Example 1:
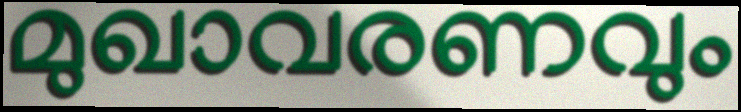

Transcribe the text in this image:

മുഖാവരണവും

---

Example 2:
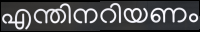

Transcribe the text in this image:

എന്തിനറിയണം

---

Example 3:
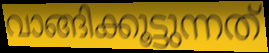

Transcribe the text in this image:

വാങ്ങിക്കൂട്ടുന്നത്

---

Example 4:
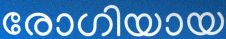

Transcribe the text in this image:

രോഗിയായ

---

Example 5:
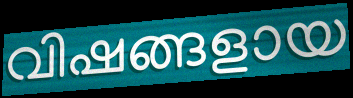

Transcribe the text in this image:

വിഷങ്ങളായ